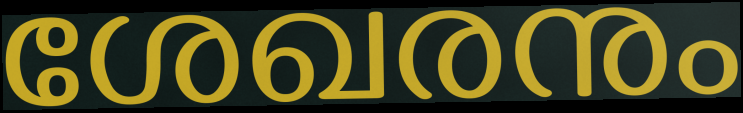
ശേഖരനും